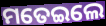
ମତେଇଲେ